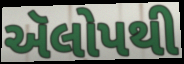
ઍલોપથી